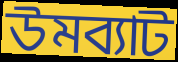
উমব্যাট